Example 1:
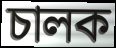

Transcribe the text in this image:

চালক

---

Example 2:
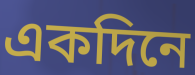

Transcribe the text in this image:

একদিনে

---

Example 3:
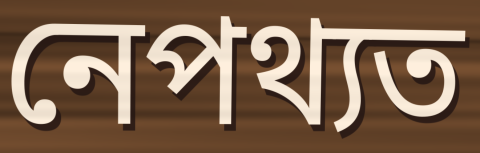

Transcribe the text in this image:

নেপথ্যত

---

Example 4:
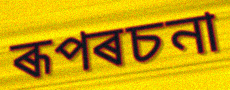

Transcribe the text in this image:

ৰূপৰচনা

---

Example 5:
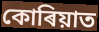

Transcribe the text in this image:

কোৰিয়াত